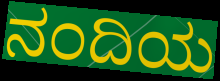
ನಂದಿಯ